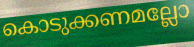
കൊടുക്കണമല്ലോ